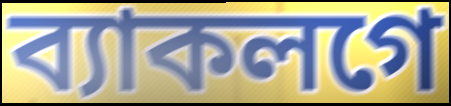
ব্যাকলগে